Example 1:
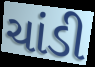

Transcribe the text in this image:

ચાંડી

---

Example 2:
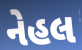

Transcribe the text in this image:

નેહલ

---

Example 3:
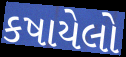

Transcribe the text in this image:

કષાયેલો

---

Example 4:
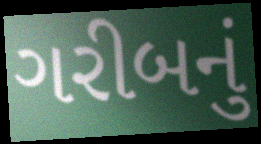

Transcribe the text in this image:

ગરીબનું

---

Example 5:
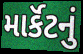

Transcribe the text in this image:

માર્કૅટનું